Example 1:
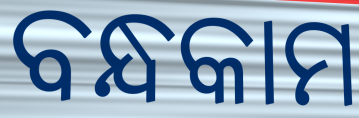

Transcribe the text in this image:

ବନ୍ଧକାମ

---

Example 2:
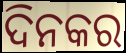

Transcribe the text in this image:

ଦିନକର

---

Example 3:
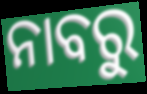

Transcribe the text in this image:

ନାବରୁ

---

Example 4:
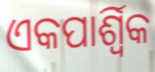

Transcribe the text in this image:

ଏକପାର୍ଶ୍ୱିକ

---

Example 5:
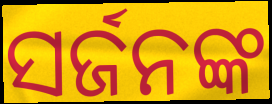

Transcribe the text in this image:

ସର୍ଜନଙ୍କ